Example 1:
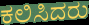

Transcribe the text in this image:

ಕಲಿಸಿದರು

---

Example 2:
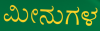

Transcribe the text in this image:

ಮೀನುಗಳ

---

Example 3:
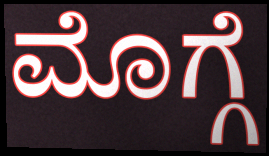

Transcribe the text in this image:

ಮೊಗ್ಗೆ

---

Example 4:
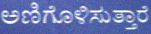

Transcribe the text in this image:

ಅಣಿಗೊಳಿಸುತ್ತಾರೆ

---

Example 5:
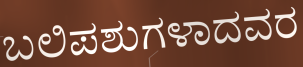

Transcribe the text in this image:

ಬಲಿಪಶುಗಳಾದವರ